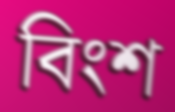
বিংশ